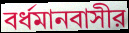
বর্ধমানবাসীর